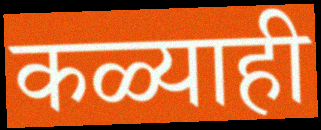
कळ्याही